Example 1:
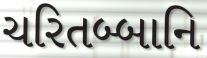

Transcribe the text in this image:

ચરિતબ્બાનિ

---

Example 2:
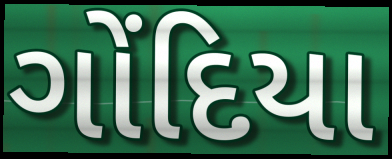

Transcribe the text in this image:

ગોંદિયા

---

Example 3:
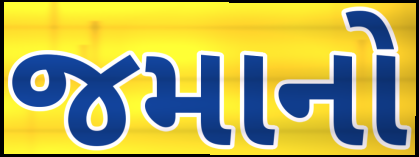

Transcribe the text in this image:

જમાનો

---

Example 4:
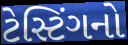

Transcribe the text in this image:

ટેસ્ટિંગનો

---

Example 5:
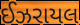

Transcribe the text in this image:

ઈઝરાયલ